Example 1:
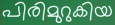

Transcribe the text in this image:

പിരിമുറുകിയ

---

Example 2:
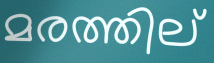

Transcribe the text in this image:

മരത്തില്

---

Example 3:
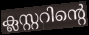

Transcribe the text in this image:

ക്ലസ്റ്ററിന്റെ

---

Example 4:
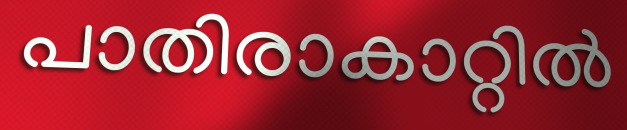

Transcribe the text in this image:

പാതിരാകാറ്റിൽ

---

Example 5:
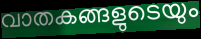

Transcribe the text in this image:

വാതകങ്ങളുടെയും